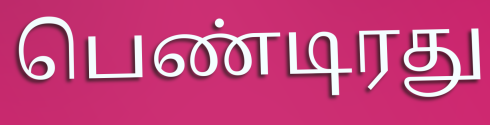
பெண்டிரது